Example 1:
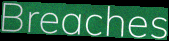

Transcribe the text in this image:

Breaches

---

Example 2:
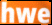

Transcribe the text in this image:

hwe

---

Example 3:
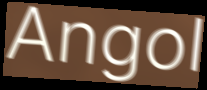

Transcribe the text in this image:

Angol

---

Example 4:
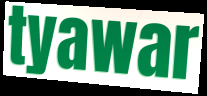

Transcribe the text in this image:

tyawar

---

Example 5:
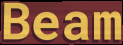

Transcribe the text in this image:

Beam